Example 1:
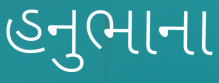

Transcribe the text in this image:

હનુભાના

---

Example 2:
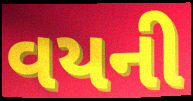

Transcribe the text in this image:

વયની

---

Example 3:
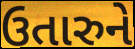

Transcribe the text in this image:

ઉતારુને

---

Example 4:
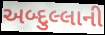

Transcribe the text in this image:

અબ્દુલ્લાની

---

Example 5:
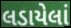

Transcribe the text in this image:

લડાયેલાં